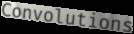
Convolutions